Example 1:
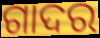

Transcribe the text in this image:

ଗାଦର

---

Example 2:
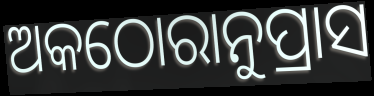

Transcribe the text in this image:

ଅକଠୋରାନୁପ୍ରାସ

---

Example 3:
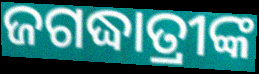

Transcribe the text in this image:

ଜଗଦ୍ଧାତ୍ରୀଙ୍କ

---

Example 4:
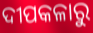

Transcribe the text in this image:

ଦୀପକଳାରୁ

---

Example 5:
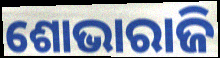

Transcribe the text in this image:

ଶୋଭାରାଜି